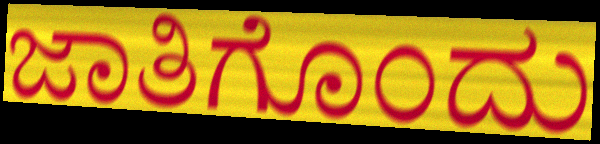
ಜಾತಿಗೊಂದು